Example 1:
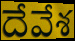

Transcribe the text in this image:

దేవేశ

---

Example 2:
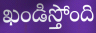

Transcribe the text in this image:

ఖండిస్తోంది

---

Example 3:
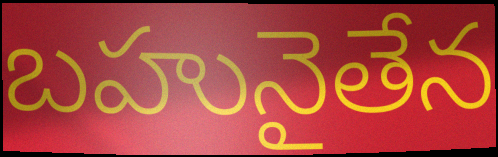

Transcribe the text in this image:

బహునైతేన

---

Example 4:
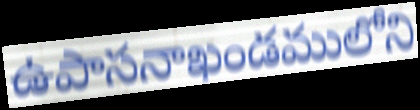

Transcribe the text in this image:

ఉపాసనాఖండములోని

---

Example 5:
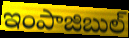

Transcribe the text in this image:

ఇంపాజిబుల్